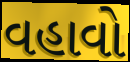
વહાવો